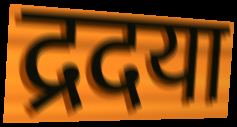
द्रदया